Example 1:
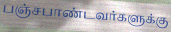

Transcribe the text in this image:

பஞ்சபாண்டவர்களுக்கு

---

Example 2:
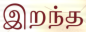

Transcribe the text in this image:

இறந்த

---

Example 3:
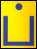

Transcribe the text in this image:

ப்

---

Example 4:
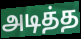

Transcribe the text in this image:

அடித்த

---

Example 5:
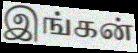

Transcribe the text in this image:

இங்கன்